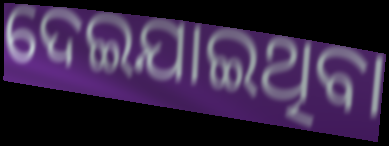
ଦେଇଯାଇଥିବା